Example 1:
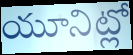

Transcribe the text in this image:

యూనిట్లో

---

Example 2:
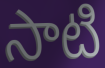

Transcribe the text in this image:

సాటి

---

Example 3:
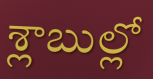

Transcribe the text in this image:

శ్లాబుల్లో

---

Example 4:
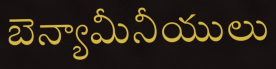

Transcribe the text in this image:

బెన్యామీనీయులు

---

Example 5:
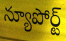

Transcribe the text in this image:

న్యూపోర్ట్